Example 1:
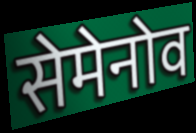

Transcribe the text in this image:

सेमेनोव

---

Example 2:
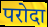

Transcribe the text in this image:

परोदा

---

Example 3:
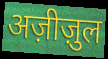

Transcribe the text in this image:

अज़ीज़ुल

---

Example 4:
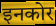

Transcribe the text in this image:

इनकोर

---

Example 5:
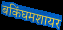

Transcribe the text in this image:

बकिंघमशायर